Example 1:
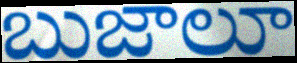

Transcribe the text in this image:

బుజాలూ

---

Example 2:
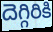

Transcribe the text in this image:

దెగ్గిరికి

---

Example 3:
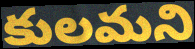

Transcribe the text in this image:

కులమని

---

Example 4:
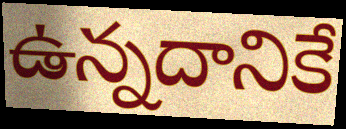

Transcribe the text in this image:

ఉన్నదానికే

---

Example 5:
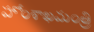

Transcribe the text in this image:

హోంశాఖమంత్రి